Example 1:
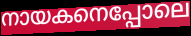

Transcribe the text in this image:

നായകനെപ്പോലെ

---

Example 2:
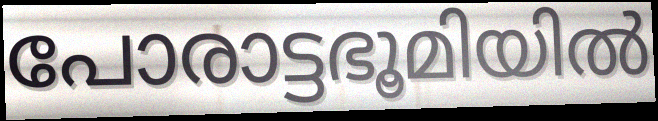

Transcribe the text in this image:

പോരാട്ടഭൂമിയിൽ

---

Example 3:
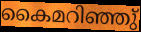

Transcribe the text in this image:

കൈമറിഞ്ഞു്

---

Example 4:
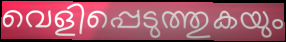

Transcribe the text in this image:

വെളിപ്പെടുത്തുകയും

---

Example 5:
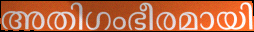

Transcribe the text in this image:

അതിഗംഭീരമായി